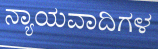
ನ್ಯಾಯವಾದಿಗಳ